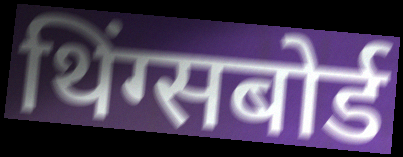
थिंग्सबोर्ड